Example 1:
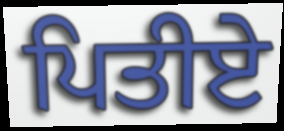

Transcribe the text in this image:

ਪਿਤੀਏ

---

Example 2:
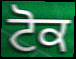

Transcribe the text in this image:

ਟੋਕ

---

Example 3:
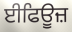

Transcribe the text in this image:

ਈਫਿਊਜ਼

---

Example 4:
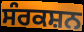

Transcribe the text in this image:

ਸੰਰਕਸ਼ਨ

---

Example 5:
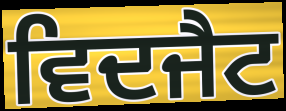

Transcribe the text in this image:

ਵਿਦਜੈਟ